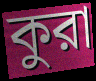
কুরা